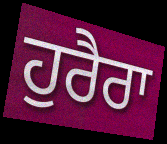
ਹੁਰੈਰਾ